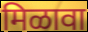
मिळावा